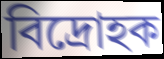
বিদ্ৰোহক